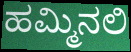
ಹಮ್ಮಿನಲಿ